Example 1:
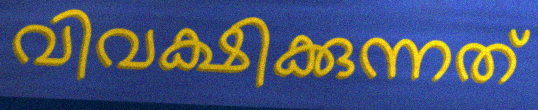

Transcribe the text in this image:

വിവക്ഷിക്കുന്നത്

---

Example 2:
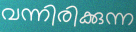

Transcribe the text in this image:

വന്നിരിക്കുന്ന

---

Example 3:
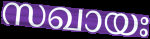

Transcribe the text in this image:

സഖായഃ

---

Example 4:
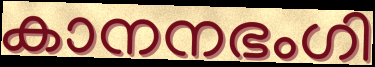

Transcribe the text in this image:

കാനനഭംഗി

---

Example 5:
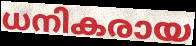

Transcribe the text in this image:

ധനികരായ